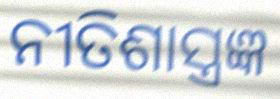
ନୀତିଶାସ୍ତ୍ରଜ୍ଞ